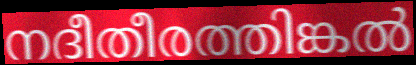
നദീതീരത്തിങ്കൽ